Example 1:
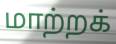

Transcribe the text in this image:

மாற்றக்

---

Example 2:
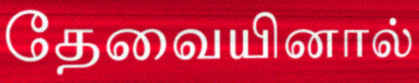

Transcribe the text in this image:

தேவையினால்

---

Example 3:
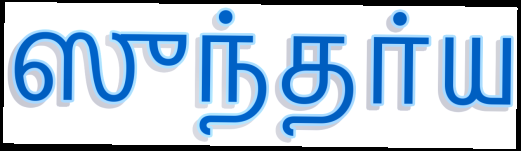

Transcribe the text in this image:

ஸுந்தர்ய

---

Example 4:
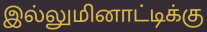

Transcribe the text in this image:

இல்லுமினாட்டிக்கு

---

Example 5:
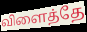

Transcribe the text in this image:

விளைத்தே